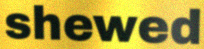
shewed